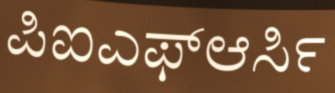
ಪಿಐಎಫ್ಆರ್ಸಿ